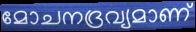
മോചനദ്രവ്യമാണ്